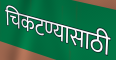
चिकटण्यासाठी